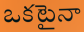
ఒకటైనా